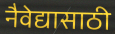
नैवेद्यासाठी